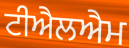
ਟੀਐਲਐਮ